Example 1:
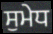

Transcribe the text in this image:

ਸੁਮੇਧ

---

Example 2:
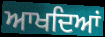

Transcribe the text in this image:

ਆਖਦਿਆਂ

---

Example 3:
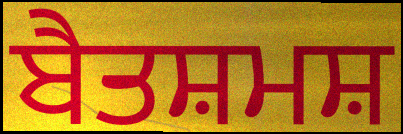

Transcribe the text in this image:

ਬੈਤਸ਼ਮਸ਼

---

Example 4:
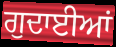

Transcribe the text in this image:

ਗੁਦਾਈਆਂ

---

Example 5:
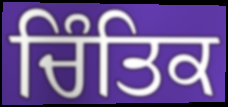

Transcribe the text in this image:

ਚਿੰਤਿਕ